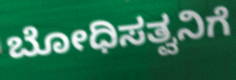
ಬೋಧಿಸತ್ವನಿಗೆ